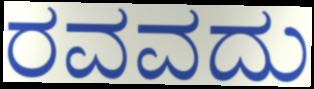
ರವವದು